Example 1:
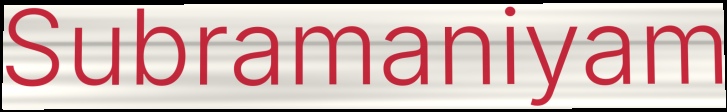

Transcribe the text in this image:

Subramaniyam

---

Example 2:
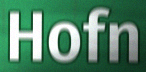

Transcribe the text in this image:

Hofn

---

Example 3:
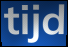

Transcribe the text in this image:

tijd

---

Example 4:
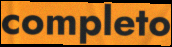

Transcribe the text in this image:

completo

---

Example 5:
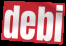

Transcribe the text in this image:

debi